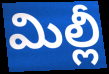
మిల్లీ